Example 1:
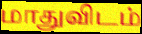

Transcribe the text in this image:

மாதுவிடம்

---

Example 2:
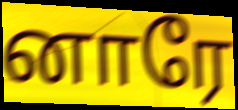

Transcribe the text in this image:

னாரே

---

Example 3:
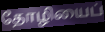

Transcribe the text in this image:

தோழியைப்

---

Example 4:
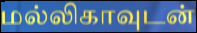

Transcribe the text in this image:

மல்லிகாவுடன்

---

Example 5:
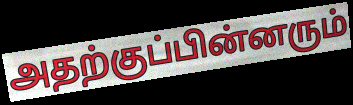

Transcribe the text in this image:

அதற்குப்பின்னரும்